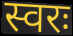
स्वरः